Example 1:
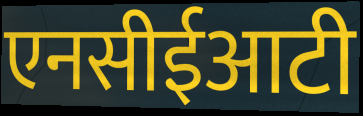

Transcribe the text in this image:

एनसीईआटी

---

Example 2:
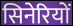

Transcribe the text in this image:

सिनेरियों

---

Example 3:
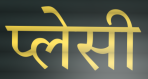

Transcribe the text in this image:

प्लेसी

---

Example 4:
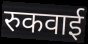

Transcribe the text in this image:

रुकवाई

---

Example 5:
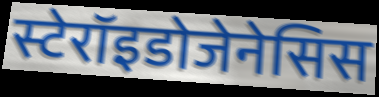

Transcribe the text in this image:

स्टेरॉइडोजेनेसिस